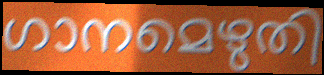
ഗാനമെഴുതി